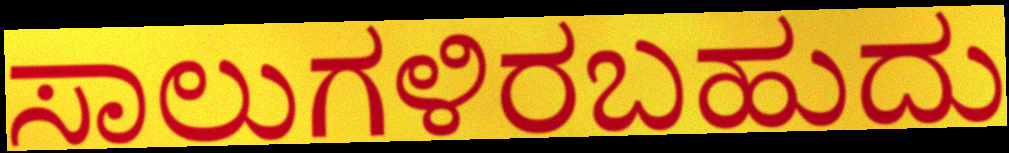
ಸಾಲುಗಳಿರಬಹುದು